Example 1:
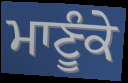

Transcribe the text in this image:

ਮਾਣੂੰਕੇ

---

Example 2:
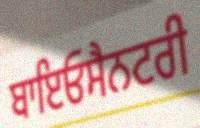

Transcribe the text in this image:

ਬਾਇਓਸੈਨਟਰੀ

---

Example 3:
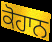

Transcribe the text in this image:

ਕੋਹਾਨ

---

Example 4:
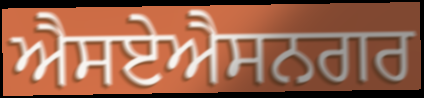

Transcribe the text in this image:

ਐਸਏਐਸਨਗਰ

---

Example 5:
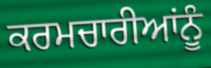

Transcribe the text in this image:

ਕਰਮਚਾਰੀਆਂਨੂੰ